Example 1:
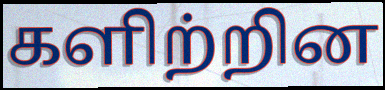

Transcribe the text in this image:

களிற்றின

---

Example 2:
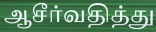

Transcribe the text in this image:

ஆசீர்வதித்து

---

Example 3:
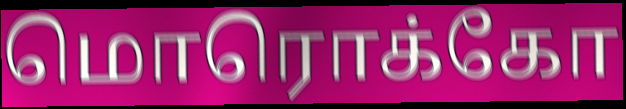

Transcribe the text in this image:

மொரொக்கோ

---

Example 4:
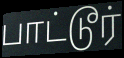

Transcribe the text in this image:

பாட்டூர்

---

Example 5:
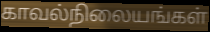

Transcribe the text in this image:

காவல்நிலையங்கள்